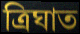
ত্ৰিঘাত